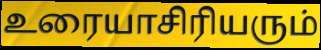
உரையாசிரியரும்